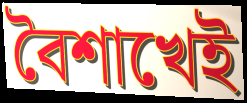
বৈশাখেই